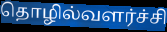
தொழில்வளர்ச்சி